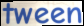
tween